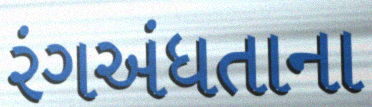
રંગઅંધતાના